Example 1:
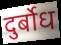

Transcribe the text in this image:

दुर्बोध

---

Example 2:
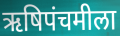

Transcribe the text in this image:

ऋषिपंचमीला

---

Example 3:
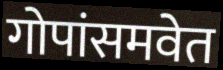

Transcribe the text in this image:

गोपांसमवेत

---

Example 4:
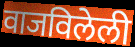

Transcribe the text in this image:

वाजविलेली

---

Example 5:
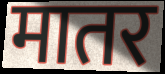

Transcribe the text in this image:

मातर